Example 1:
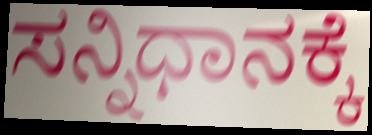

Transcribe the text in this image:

ಸನ್ನಿಧಾನಕ್ಕೆ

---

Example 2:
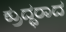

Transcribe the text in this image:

ಕ್ರುದ್ಧರಾದ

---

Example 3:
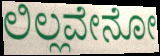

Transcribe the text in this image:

ಲಿಲ್ಲವೇನೋ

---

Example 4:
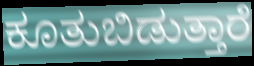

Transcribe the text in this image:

ಕೂತುಬಿಡುತ್ತಾರೆ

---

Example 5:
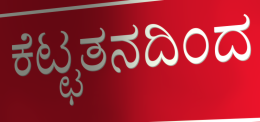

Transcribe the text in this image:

ಕೆಟ್ಟತನದಿಂದ